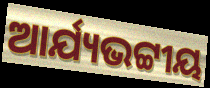
ଆର୍ଯ୍ୟଭଟ୍ଟୀୟ